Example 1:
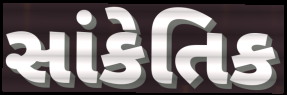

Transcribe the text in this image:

સાંકેતિક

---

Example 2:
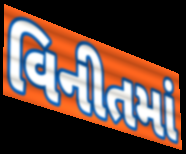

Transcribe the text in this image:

વિનીતમાં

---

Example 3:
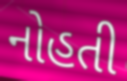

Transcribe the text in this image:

નોહતી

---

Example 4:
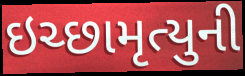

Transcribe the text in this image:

ઇચ્છામૃત્યુની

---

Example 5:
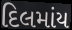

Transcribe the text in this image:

દિલમાંય